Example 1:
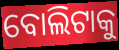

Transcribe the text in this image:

ବୋଲିଟାକୁ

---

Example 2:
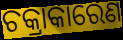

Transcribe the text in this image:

ଚକ୍ରାକାରେଣ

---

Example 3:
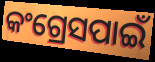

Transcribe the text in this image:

କଂଗ୍ରେସପାଇଁ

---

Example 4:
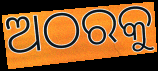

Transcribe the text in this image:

ଅଠରକୁ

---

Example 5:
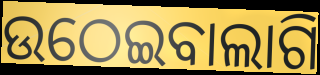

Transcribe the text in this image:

ଉଠେଇବାଲାଗି